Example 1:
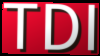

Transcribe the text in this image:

TDI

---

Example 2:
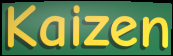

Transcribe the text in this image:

Kaizen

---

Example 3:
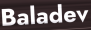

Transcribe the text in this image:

Baladev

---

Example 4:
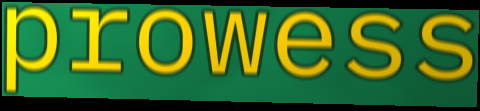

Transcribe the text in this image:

prowess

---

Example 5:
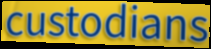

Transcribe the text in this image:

custodians